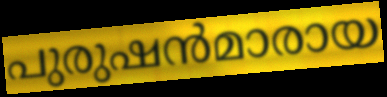
പുരുഷൻമാരായ